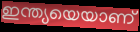
ഇന്ത്യയെയാണ്